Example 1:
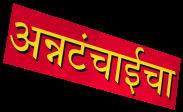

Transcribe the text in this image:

अन्नटंचाईचा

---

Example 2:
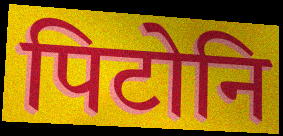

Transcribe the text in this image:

पिटोनि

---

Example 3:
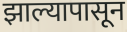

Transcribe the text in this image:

झाल्यापासून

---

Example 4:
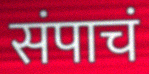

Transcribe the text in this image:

संपाचं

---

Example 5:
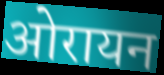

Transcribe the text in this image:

ओरायन